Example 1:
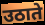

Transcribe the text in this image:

उठाते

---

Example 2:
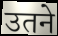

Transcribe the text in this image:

उतने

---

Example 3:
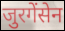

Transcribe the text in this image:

जुरगेंसेन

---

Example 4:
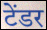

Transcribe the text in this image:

टेंडर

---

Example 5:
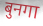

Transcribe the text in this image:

बुनगा